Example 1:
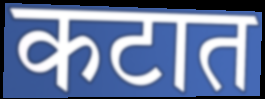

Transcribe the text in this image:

कटात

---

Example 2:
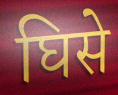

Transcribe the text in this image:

घिसे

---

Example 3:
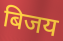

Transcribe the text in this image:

बिजय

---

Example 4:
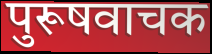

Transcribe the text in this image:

पुरूषवाचक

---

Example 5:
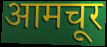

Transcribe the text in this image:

आमचूर